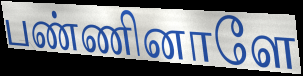
பண்ணினாளே